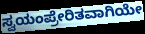
ಸ್ವಯಂಪ್ರೇರಿತವಾಗಿಯೇ